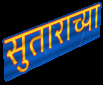
सुताराच्या